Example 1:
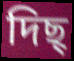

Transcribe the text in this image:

দিছ্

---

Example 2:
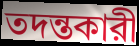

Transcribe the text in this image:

তদন্তকারী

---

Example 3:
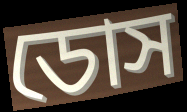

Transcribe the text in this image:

ডোস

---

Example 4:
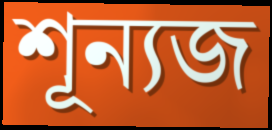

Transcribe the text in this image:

শূন্যজ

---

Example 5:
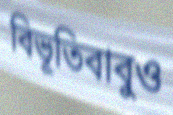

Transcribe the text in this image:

বিভূতিবাবুও